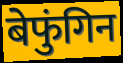
बेफुंगिन